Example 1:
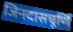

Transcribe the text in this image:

जिनदासचूर्णि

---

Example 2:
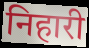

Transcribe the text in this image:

निहारी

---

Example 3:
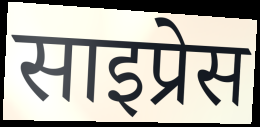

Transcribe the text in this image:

साइप्रेस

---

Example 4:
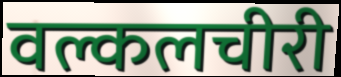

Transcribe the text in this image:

वल्कलचीरी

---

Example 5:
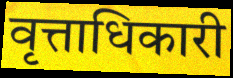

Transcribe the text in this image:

वृत्ताधिकारी